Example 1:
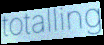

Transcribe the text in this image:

totalling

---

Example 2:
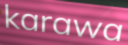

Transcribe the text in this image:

karawa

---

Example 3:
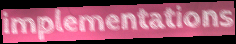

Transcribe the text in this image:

implementations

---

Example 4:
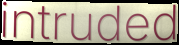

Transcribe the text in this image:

intruded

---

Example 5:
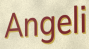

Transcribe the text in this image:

Angeli